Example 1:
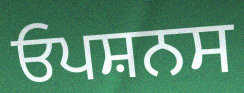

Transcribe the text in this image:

ਓਪਸ਼ਨਸ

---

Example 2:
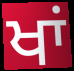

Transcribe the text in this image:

ਖਾਂ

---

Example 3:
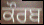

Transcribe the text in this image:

ਕੌਰਬ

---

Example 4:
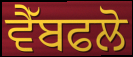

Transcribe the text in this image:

ਵੈੱਬਫਲੋ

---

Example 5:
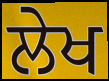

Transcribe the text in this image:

ਲੇਖ